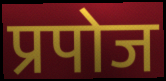
प्रपोज